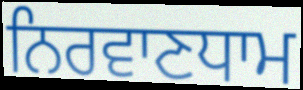
ਨਿਰਵਾਣਧਾਮ